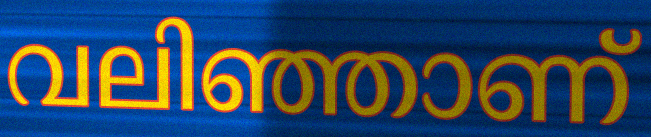
വലിഞ്ഞാണ്